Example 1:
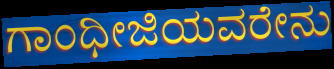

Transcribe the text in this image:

ಗಾಂಧೀಜಿಯವರೇನು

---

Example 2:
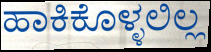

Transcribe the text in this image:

ಹಾಕಿಕೊಳ್ಳಲಿಲ್ಲ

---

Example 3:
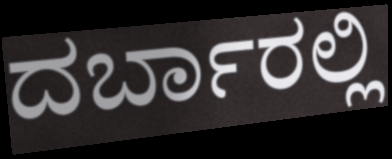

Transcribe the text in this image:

ದರ್ಬಾರಲ್ಲಿ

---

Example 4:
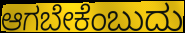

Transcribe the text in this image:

ಆಗಬೇಕೆಂಬುದು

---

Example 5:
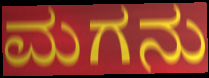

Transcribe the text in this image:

ಮಗನು